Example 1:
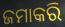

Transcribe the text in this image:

ଜମାକରି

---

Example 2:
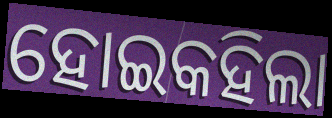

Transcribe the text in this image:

ହୋଇକହିଲା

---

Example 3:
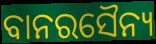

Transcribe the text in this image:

ବାନରସୈନ୍ୟ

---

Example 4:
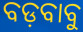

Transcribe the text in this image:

ବଡ଼ବାବୁ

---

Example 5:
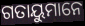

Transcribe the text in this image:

ଗତାୟୁମାନେ